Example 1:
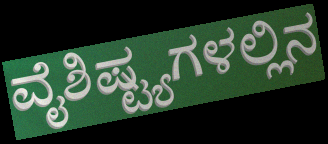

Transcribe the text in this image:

ವೈಶಿಷ್ಟ್ಯಗಳಲ್ಲಿನ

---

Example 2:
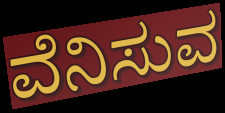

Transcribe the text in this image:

ವೆನಿಸುವ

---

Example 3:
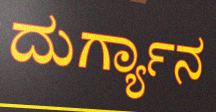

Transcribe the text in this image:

ದುರ್ಗ್ಯಾನ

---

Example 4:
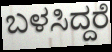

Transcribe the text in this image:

ಬಳಸಿದ್ದರೆ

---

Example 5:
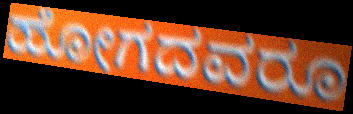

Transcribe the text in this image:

ಹೋಗದವರೂ